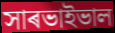
সাৰভাইভাল